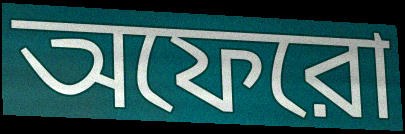
অফেরো